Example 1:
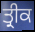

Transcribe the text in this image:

ਤ੍ਰੀਕ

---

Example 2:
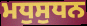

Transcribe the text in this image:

ਮਧੁਸੁਧਨ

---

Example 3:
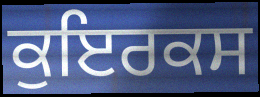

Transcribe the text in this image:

ਕੁਇਰਕਸ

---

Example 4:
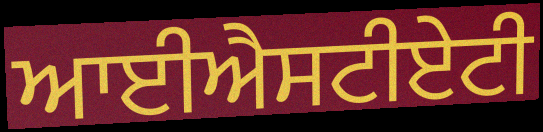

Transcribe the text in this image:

ਆਈਐਸਟੀਏਟੀ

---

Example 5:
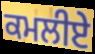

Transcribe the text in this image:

ਕਮਲੀਏ